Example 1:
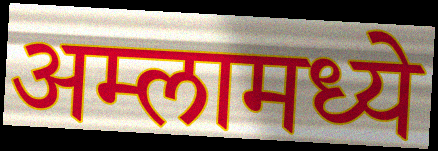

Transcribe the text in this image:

अम्लामध्ये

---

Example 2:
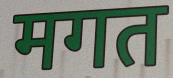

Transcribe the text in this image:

मगत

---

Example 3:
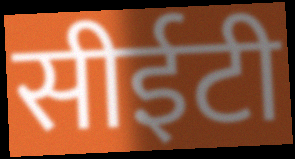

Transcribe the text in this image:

सीईटी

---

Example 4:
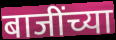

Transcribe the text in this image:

बाजींच्या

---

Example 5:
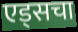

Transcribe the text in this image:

एड्सचा